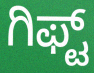
ಗಿಫ್ಟ್